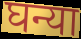
घन्या